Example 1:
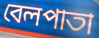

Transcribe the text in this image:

বেলপাতা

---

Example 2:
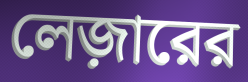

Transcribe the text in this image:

লেজ়ারের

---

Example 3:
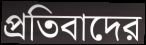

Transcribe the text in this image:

প্রতিবাদের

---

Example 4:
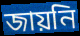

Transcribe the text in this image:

জায়নি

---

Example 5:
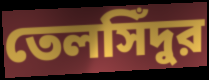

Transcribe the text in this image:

তেলসিঁদুর